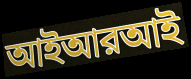
আইআরআই